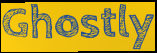
Ghostly